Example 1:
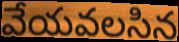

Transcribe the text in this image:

వేయవలసిన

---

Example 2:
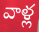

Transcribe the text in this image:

వాళ్ల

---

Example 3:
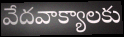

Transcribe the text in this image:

వేదవాక్యాలకు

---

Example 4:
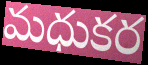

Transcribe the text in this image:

మధుకర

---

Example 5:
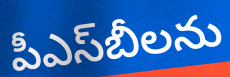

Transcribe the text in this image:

పీఎస్‌బీలను